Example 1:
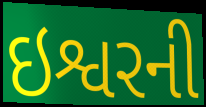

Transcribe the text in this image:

ઇશ્વરની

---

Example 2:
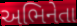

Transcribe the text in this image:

અભિનેતા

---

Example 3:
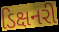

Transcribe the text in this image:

ડિક્ષનરી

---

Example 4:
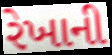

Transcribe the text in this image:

રેખાની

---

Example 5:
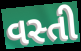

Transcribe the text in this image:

વસ્તી